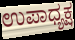
ಉಪಾಧ್ಯಕ್ಷ